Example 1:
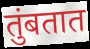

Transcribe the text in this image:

तुंबतात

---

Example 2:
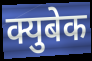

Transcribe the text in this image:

क्युबेक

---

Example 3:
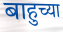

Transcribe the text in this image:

बाहुच्या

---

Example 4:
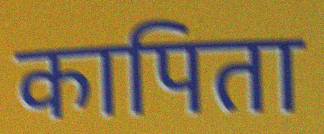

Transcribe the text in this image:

कापिता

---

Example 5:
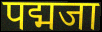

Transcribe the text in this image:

पद्मजा